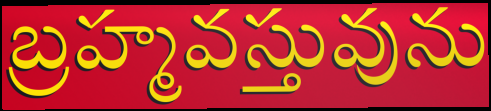
బ్రహ్మవస్తువును